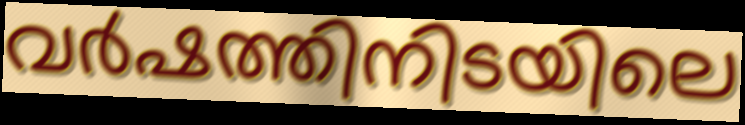
വർഷത്തിനിടയിലെ